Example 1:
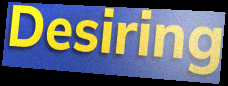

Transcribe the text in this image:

Desiring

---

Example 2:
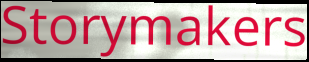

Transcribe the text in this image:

Storymakers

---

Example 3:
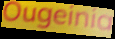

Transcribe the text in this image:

Ougeinia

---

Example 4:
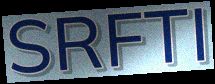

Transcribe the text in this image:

SRFTI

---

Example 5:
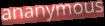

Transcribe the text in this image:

ananymous